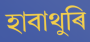
হাবাথুৰি